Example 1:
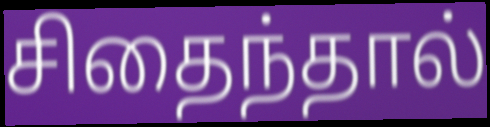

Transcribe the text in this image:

சிதைந்தால்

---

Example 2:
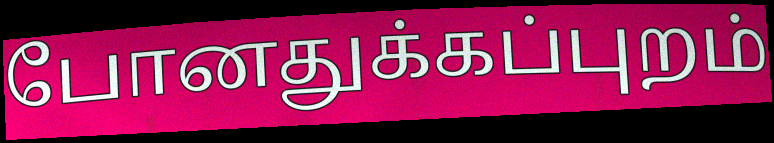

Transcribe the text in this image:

போனதுக்கப்புறம்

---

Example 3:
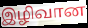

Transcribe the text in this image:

இழிவான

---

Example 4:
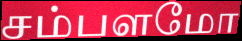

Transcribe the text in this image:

சம்பளமோ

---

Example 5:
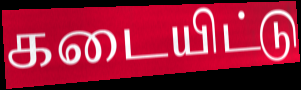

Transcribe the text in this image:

கடையிட்டு